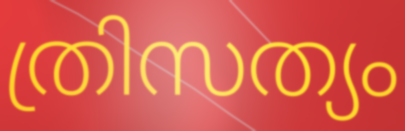
ത്രിസത്യം